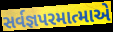
સર્વજ્ઞપરમાત્માએ